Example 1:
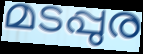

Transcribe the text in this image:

മടപ്പുര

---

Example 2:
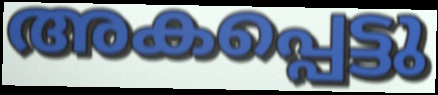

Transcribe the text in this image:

അകപ്പെട്ടു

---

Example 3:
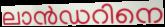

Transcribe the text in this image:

ലാൻഡറിനെ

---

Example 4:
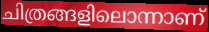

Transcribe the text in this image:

ചിത്രങ്ങളിലൊന്നാണ്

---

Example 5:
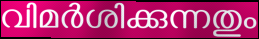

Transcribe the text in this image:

വിമർശിക്കുന്നതും